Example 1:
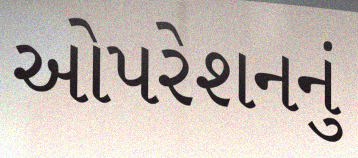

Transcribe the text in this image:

ઓપરેશનનું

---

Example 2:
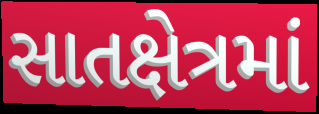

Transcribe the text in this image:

સાતક્ષેત્રમાં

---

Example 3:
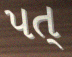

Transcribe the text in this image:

પત્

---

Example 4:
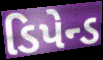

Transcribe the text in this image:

ડિપેન્ડ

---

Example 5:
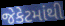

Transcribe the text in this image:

જેકેટમાંથી